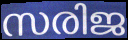
സരിജ